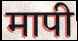
मापी